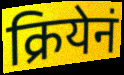
क्रियेनं